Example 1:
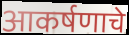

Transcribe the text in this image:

आकर्षणाचे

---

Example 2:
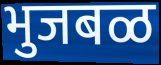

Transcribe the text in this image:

भुजबळ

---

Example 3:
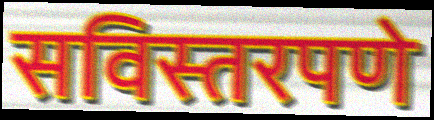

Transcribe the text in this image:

सविस्तरपणे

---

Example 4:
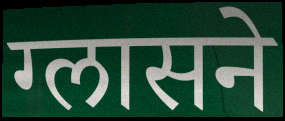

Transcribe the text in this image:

ग्लासने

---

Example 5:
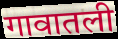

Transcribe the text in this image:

गावातली